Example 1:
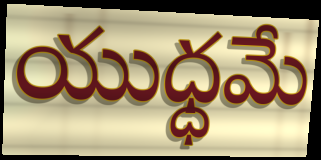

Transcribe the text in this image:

యుధ్ధమే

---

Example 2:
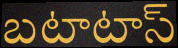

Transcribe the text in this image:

బటాటాస్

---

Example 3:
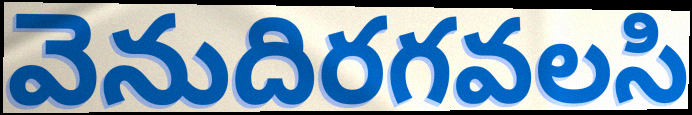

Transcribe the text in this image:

వెనుదిరగవలసి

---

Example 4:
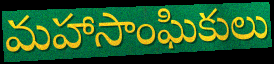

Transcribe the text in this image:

మహాసాంఘికులు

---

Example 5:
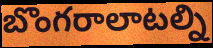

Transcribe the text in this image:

బొంగరాలాటల్ని